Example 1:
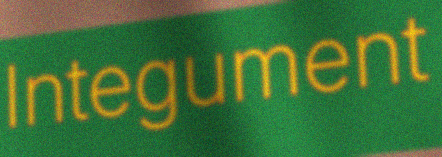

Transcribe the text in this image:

Integument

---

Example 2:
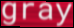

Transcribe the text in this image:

gray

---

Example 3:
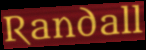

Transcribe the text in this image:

Randall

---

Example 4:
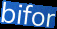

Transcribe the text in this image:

bifor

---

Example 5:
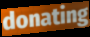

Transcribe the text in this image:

donating